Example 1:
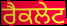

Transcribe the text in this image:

ਰੈਕਲੇਟ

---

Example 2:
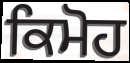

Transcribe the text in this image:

ਕਿਮੋਹ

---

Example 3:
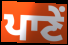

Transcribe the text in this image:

ਪਾਣੇਂ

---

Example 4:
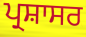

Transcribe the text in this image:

ਪ੍ਰਸ਼ਾਸਰ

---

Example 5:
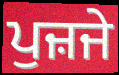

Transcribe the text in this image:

ਪੁਜ਼ਜੇ